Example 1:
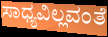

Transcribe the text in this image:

ಸಾಧ್ಯವಿಲ್ಲವಂತೆ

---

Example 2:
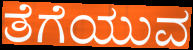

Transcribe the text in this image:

ತೆಗೆಯುವ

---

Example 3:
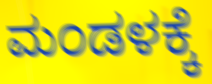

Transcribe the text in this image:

ಮಂಡಳಕ್ಕೆ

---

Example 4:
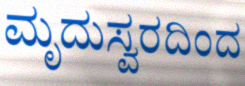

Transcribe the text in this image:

ಮೃದುಸ್ವರದಿಂದ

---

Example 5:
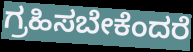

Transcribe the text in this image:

ಗ್ರಹಿಸಬೇಕೆಂದರೆ